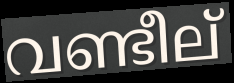
വണ്ടീല്